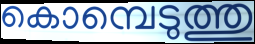
കൊമ്പെടുത്തു